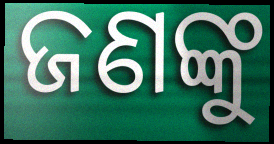
ଜଣଙ୍କୁ